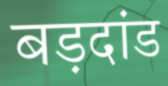
बड़दांड